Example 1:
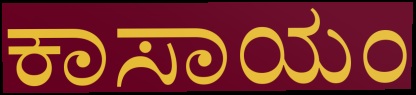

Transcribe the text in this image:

ಕಾಸಾಯಂ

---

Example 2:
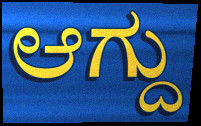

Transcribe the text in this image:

ಆಗ್ದು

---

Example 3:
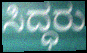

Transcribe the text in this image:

ಸಿದ್ಧರು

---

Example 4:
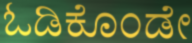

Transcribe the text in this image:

ಓಡಿಕೊಂಡೇ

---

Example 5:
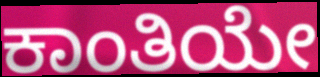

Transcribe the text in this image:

ಕಾಂತಿಯೇ